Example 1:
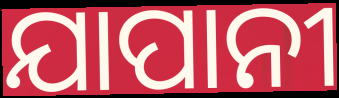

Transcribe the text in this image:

ଯାପାନୀ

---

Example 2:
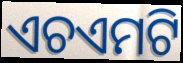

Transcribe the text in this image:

ଏଚଏମଟି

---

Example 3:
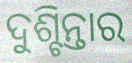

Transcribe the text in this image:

ଦୁଶ୍ଚିନ୍ତାର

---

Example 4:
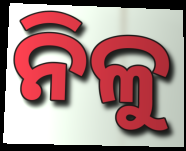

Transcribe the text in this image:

ନିଳୁ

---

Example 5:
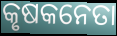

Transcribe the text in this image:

କୃଷକନେତା